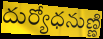
దుర్యోధనుణ్ణి